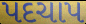
પદચાપ